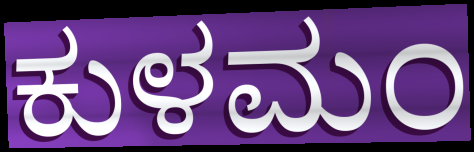
ಕುಳಮಂ